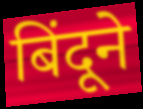
बिंदूने